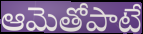
ఆమెతోపాటే